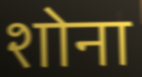
शोना